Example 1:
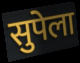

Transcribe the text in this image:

सुपेला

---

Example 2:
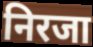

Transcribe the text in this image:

निरजा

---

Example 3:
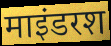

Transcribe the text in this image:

माइंडरश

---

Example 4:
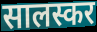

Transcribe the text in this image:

सालस्कर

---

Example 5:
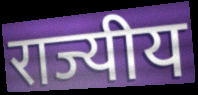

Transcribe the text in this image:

राज्यीय